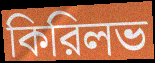
কিরিলভ